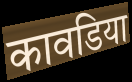
कावडिया